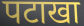
पटाखा